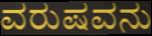
ವರುಷವನು